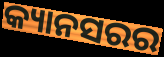
କ୍ୟାନସରର